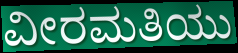
ವೀರಮತಿಯು